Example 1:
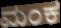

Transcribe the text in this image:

ಮಂಕ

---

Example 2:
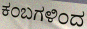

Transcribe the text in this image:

ಕಂಬಗಳಿಂದ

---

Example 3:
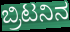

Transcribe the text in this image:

ಬ್ರಿಟನಿನ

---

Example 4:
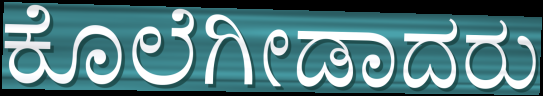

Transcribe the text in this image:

ಕೊಲೆಗೀಡಾದರು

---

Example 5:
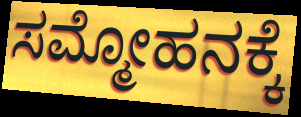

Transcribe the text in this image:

ಸಮ್ಮೋಹನಕ್ಕೆ